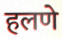
हलणे